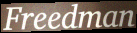
Freedman